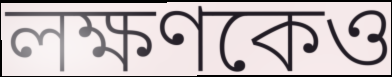
লক্ষণকেও